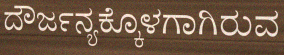
ದೌರ್ಜನ್ಯಕ್ಕೊಳಗಾಗಿರುವ